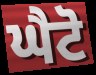
ਘੈਟੋ